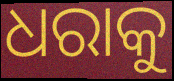
ଧରାକୁ